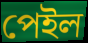
পেইল